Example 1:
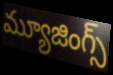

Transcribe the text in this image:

మ్యూజింగ్స్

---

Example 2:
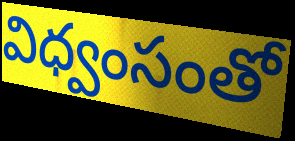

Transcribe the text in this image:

విధ్వంసంతో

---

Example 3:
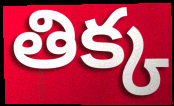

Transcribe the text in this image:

తిక్క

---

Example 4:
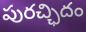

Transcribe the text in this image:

పురచ్ఛిదం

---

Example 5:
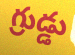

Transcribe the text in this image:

గ్రుడ్డు